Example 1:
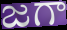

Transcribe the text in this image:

జగా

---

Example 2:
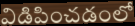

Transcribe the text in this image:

విడిపించడంలో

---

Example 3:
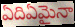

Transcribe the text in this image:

ఏదిఏమైనా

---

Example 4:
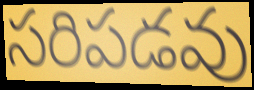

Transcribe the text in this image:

సరిపడవు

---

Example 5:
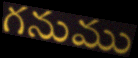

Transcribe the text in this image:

గనుము